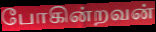
போகின்றவன்